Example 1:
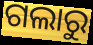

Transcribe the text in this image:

ଗଲାରୁ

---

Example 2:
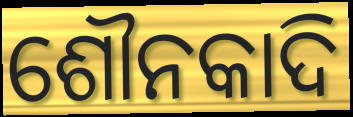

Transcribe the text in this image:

ଶୌନକାଦି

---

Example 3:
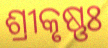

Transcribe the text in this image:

ଶ୍ରୀକୃଷ୍ଣଃ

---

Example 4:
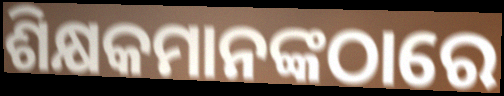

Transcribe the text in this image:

ଶିକ୍ଷକମାନଙ୍କଠାରେ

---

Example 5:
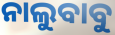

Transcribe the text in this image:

ନାଲୁବାବୁ